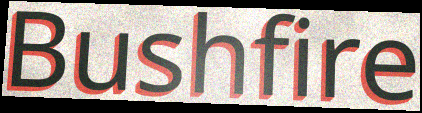
Bushfire